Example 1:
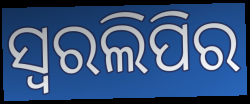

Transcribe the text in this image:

ସ୍ୱରଲିପିର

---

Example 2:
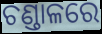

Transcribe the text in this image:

ଚଣ୍ଡାଳରେ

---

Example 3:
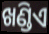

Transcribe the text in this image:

ଖଣ୍ଡିଏ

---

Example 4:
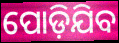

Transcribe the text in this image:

ପୋଡ଼ିଯିବ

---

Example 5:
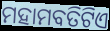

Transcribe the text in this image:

ମହାମବତିଟିଏ